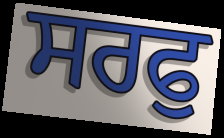
ਸਰਫੁ